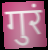
गुरं